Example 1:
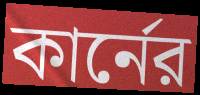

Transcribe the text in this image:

কার্নের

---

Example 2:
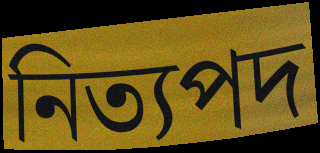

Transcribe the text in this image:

নিত্যপদ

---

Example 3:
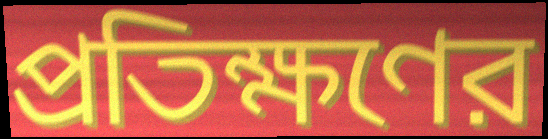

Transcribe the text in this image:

প্রতিক্ষণের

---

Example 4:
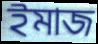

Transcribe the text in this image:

ইমাজ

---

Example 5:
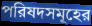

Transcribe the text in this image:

পরিষদসমূহের